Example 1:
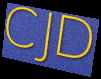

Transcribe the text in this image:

CJD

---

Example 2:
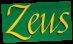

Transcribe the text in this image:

Zeus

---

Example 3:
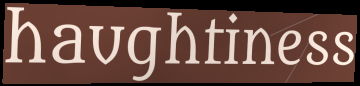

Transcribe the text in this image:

haughtiness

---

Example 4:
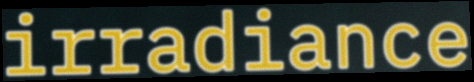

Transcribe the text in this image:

irradiance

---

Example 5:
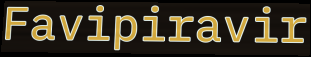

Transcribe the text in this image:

Favipiravir